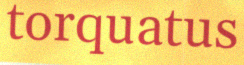
torquatus